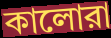
কালোরা